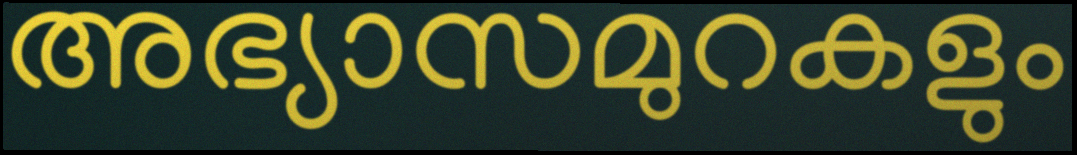
അഭ്യാസമുറകളും